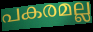
പകരമല്ല